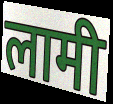
लामी